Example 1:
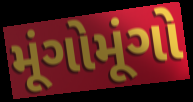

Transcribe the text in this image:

મૂંગોમૂંગો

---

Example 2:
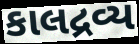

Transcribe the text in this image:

કાલદ્રવ્ય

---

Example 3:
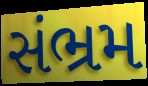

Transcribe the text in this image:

સંભ્રમ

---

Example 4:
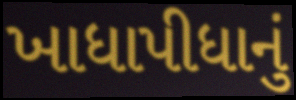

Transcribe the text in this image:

ખાધાપીધાનું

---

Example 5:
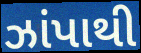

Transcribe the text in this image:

ઝાંપાથી